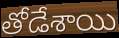
తోడేశాయి